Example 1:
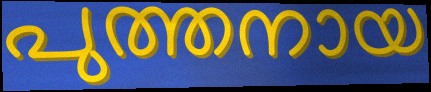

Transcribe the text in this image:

പുത്തനായ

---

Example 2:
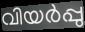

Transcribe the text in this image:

വിയർപ്പു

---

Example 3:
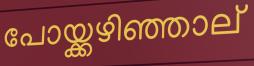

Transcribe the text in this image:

പോയ്ക്കഴിഞ്ഞാല്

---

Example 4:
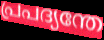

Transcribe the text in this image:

പ്രപദ്യന്തേ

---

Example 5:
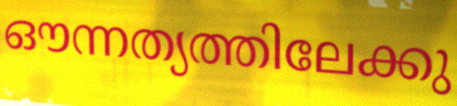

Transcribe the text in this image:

ഔന്നത്യത്തിലേക്കു